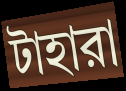
টাহারা